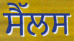
ਸੈੱਲਸ